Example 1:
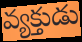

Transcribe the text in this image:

వ్యక్తుడు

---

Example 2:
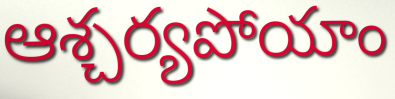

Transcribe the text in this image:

ఆశ్చర్యపోయాం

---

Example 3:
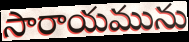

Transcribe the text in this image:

సారాయమును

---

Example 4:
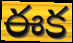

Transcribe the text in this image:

ఈక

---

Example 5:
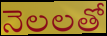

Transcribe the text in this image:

నెలలతో